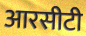
आरसीटी